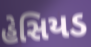
હેસિયડ